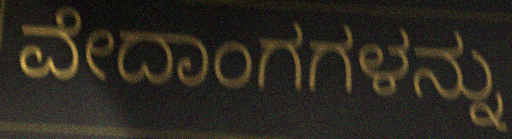
ವೇದಾಂಗಗಳನ್ನು